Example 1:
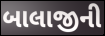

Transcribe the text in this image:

બાલાજીની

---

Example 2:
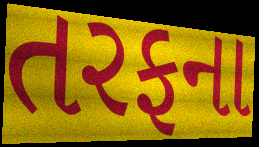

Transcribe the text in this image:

તરફના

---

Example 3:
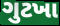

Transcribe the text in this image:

ગુટખા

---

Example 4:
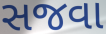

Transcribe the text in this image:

સજવા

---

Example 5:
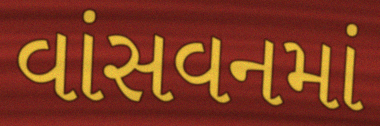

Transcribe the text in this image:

વાંસવનમાં